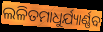
ଲଳିତମାଧୁର୍ଯ୍ୟାର୍ଣ୍ଣବ